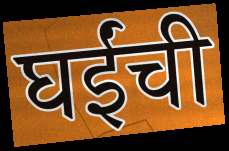
घईंची